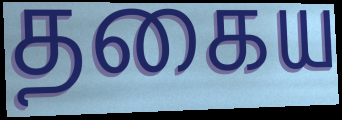
தகைய